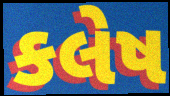
કલેષ